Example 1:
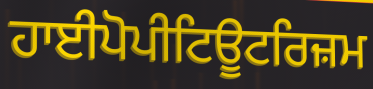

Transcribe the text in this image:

ਹਾਈਪੋਪੀਟਿਊਟਰਿਜ਼ਮ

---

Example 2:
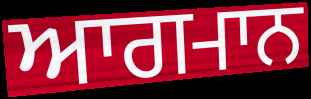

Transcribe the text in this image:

ਆਗ੍ਮਾਨ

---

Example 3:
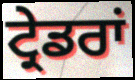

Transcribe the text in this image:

ਟ੍ਰੇਡਰਾਂ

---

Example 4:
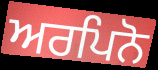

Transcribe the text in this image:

ਅਰਪਿਨੋ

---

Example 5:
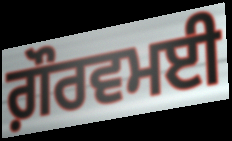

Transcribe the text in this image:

ਗ਼ੌਰਵਮਈ